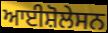
ਆਈਸ਼ੋਲੇਸਨ